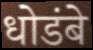
धोडंबे